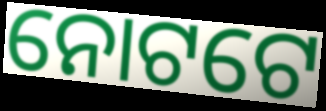
ନୋଟଟେ